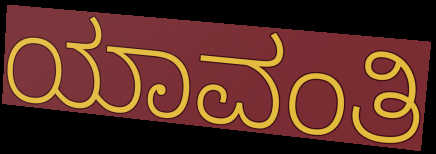
ಯಾವಂತಿ